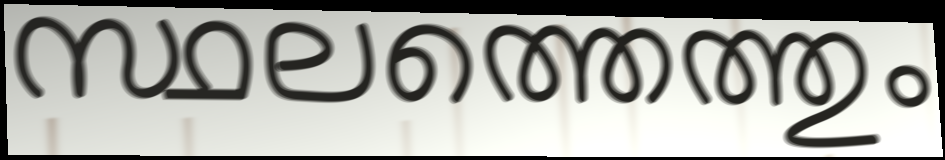
സ്ഥലത്തെത്തും